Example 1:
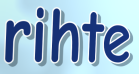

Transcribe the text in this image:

rihte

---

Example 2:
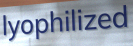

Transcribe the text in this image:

lyophilized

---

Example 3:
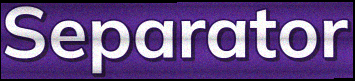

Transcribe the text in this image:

Separator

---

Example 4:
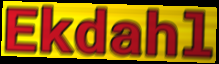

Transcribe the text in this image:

Ekdahl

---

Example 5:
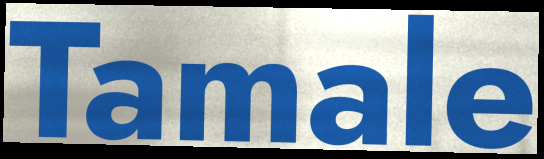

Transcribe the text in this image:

Tamale